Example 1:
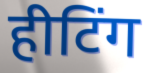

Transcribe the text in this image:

हीटिंग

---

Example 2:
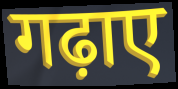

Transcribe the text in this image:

गढ़ाए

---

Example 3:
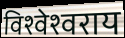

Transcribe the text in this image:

विश्वेश्वराय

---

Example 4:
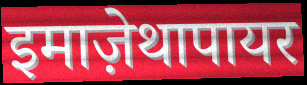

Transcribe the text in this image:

इमाज़ेथापायर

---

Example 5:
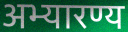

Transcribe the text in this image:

अभ्यारण्य